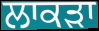
ਲਾਕੜਾ